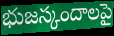
భుజస్కందాలపై